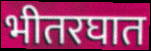
भीतरघात